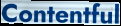
Contentful